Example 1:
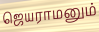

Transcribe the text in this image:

ஜெயராமனும்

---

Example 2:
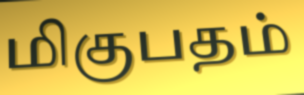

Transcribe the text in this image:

மிகுபதம்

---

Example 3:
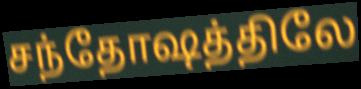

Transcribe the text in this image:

சந்தோஷத்திலே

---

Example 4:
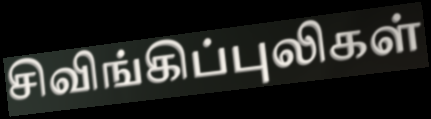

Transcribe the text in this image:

சிவிங்கிப்புலிகள்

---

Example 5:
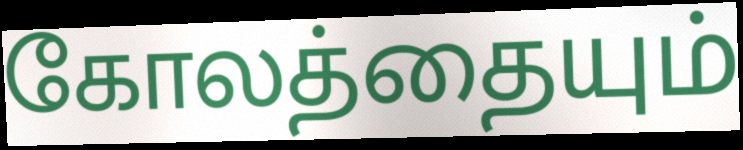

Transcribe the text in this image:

கோலத்தையும்